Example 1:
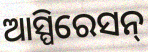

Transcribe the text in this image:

ଆସ୍ପିରେସନ୍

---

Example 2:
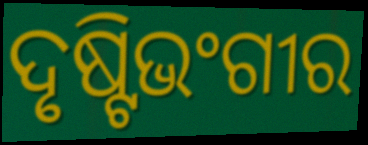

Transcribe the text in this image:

ଦୃଷ୍ଟିଭଂଗୀର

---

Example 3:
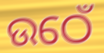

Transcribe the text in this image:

ଉଠେଁ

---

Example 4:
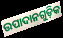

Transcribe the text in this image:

ଉପାଦାନଗୁଡ଼ିକ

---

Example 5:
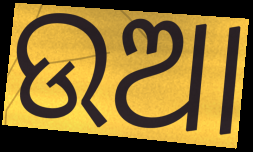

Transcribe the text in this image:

ଉଆ